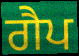
ਗੈਪ